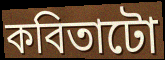
কবিতাটো